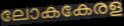
ലോകകേരള